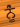
ਨੂਂੰ